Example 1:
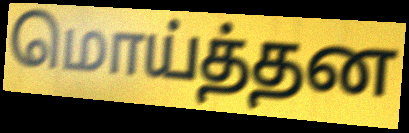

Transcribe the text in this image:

மொய்த்தன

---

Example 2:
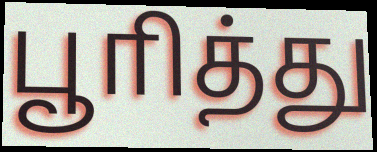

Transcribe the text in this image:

பூரித்து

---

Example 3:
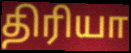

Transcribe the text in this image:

திரியா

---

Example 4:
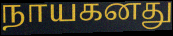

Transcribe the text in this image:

நாயகனது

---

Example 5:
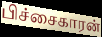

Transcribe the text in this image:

பிச்சைகாரன்